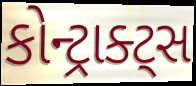
કોન્ટ્રાક્ટ્સ